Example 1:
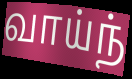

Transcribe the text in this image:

வாய்ந்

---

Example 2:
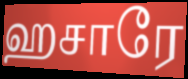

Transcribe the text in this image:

ஹசாரே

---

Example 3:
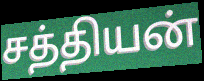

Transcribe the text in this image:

சத்தியன்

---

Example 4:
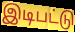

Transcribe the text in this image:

இடிபட்டு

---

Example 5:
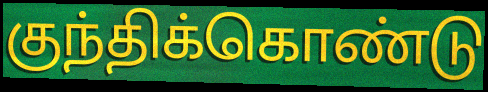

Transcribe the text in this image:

குந்திக்கொண்டு